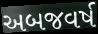
અબજવર્ષ